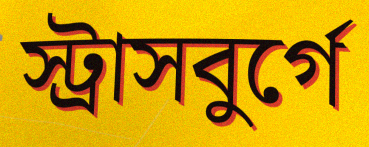
স্ট্রাসবুর্গে